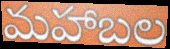
మహాబల